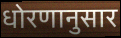
धोरणानुसार